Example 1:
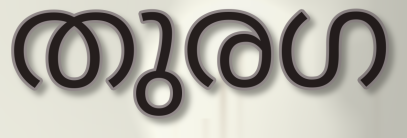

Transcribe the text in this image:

തുരഗ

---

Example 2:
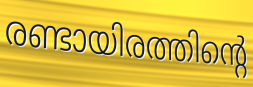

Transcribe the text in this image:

രണ്ടായിരത്തിന്റെ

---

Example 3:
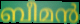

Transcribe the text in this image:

ബീമൻ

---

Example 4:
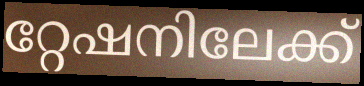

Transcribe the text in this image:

റ്റേഷനിലേക്ക്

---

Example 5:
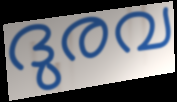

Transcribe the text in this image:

ദുരവ